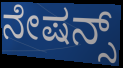
ನೇಷನ್ಸ್